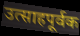
उत्साहपूर्वक